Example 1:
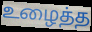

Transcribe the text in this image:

உழைத்த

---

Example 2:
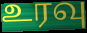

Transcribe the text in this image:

உரவு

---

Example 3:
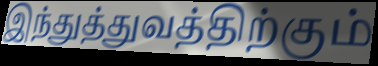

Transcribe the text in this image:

இந்துத்துவத்திற்கும்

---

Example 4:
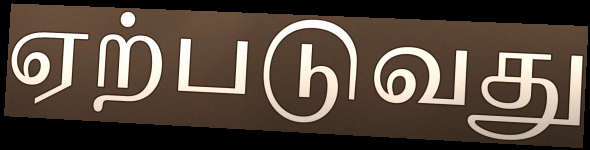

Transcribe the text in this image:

ஏற்படுவது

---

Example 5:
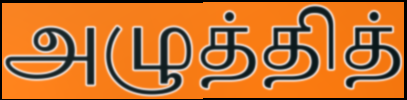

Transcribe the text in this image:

அழுத்தித்